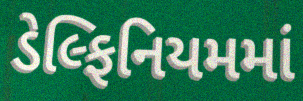
ડેલ્ફિનિયમમાં